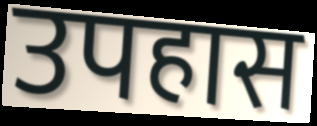
उपहास